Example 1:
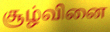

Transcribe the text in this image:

சூழ்வினை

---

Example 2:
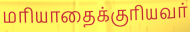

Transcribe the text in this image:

மரியாதைக்குரியவர்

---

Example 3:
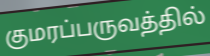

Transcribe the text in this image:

குமரப்பருவத்தில்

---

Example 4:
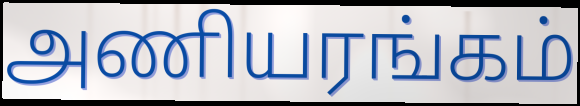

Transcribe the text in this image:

அணியரங்கம்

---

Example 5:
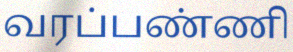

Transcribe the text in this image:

வரப்பண்ணி